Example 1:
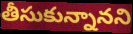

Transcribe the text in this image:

తీసుకున్నానని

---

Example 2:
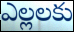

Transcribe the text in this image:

ఎల్లలకు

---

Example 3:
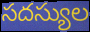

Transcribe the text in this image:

సదస్యుల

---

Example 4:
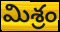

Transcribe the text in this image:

మిశ్రం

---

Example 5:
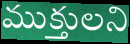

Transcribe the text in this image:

ముక్తులని